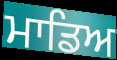
ਮਾਡਿਅ